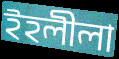
ইহলীলা